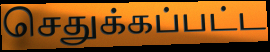
செதுக்கப்பட்ட